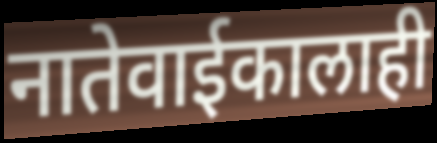
नातेवाईकालाही